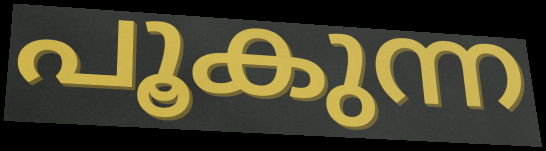
പൂകുന്ന